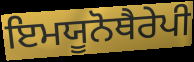
ਇਮਯੂਨੋਥੈਰੇਪੀ